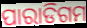
ପାରାଡିଗମ